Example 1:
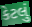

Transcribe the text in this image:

કેટલું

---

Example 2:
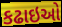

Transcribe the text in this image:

કઢાઇઓ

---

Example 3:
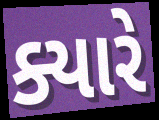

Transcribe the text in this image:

ક્યારે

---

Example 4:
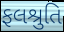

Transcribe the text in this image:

ફલશ્રુતિ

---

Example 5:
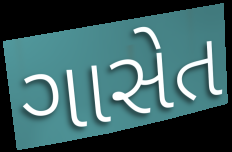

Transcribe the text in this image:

ગાસેત